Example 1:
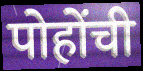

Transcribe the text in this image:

पोहोंची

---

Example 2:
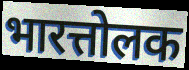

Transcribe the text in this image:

भारत्तोलक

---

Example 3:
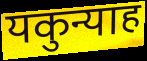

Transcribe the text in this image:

यकुन्याह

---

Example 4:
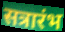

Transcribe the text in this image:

सत्रारंभ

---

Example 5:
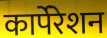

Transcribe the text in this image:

कार्पेरेशन